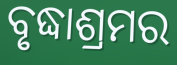
ବୃଦ୍ଧାଶ୍ରମର